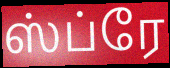
ஸ்ப்ரே